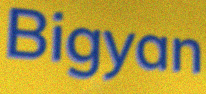
Bigyan